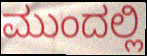
ಮುಂದಲ್ಲಿ